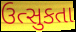
ઉત્સુકતા